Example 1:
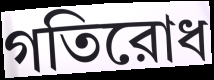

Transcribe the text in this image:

গতিরোধ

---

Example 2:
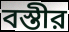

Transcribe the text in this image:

বস্তীর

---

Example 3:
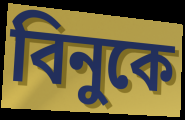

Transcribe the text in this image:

বিনুকে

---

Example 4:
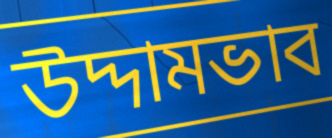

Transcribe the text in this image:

উদ্দামভাব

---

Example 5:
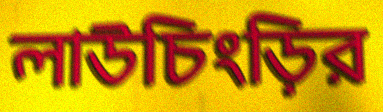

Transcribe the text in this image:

লাউচিংড়ির